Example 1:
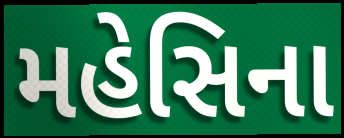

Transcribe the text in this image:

મહેસિના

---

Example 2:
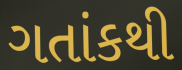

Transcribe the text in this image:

ગતાંકથી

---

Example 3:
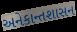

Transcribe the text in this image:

અનેકાન્તશાસન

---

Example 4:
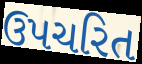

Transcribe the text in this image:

ઉપચરિત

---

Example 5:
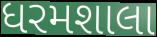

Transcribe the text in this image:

ધરમશાલા